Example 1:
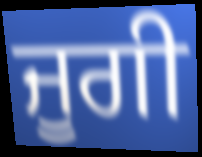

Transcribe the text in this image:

ਜੂਗੀ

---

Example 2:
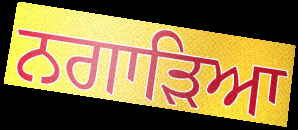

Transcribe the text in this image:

ਨਗਾੜਿਆ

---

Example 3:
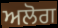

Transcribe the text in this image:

ਅਲੋਗ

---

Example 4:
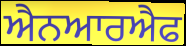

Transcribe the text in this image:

ਐਨਆਰਐਫ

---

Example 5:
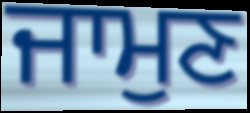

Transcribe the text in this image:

ਜਾਮੁਣ